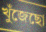
খুঁজেছো